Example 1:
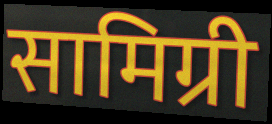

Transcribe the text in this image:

सामिग्री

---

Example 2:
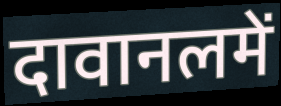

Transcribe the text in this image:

दावानलमें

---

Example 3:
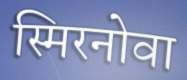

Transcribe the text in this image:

स्मिरनोवा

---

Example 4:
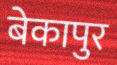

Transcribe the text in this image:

बेकापुर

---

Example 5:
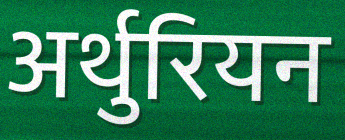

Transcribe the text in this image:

अर्थुरियन